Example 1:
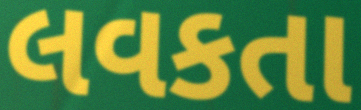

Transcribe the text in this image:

લવકતા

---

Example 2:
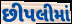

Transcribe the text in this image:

છીપલીમાં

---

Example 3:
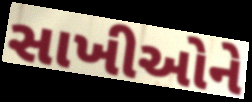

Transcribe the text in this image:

સાખીઓને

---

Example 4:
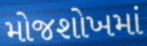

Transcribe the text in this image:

મોજશોખમાં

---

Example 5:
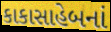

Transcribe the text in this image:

કાકાસાહેબનાં